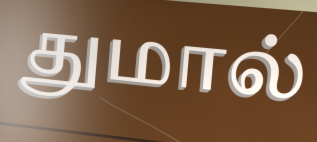
துமால்